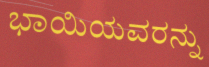
ಭಾಯಿಯವರನ್ನು